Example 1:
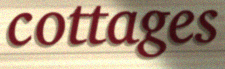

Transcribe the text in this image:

cottages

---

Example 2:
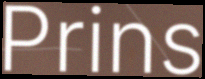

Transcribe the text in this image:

Prins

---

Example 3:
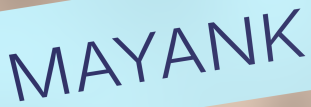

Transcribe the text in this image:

MAYANK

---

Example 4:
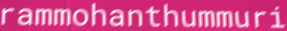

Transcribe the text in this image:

rammohanthummuri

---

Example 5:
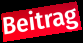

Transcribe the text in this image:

Beitrag